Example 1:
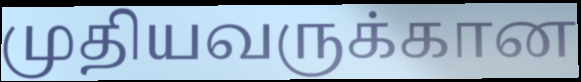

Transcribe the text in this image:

முதியவருக்கான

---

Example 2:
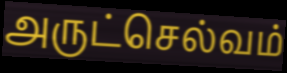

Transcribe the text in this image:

அருட்செல்வம்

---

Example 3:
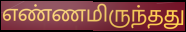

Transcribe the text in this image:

எண்ணமிருந்தது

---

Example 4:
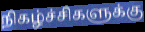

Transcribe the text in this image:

நிகழ்ச்சிகளுக்கு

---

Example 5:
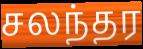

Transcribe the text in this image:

சலந்தர